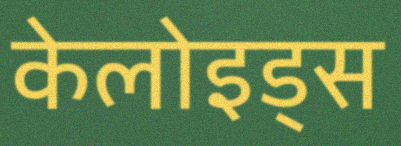
केलोइड्स